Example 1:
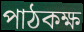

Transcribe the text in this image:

পাঠকক্ষ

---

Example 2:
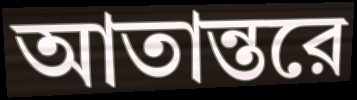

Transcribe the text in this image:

আতান্তরে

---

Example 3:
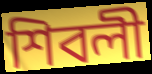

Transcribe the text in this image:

শিবলী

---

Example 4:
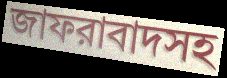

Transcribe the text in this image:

জাফরাবাদসহ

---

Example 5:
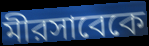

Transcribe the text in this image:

মীরসাবেকে